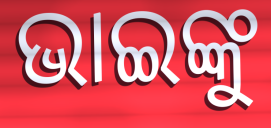
ଭାଇଙ୍କୁ